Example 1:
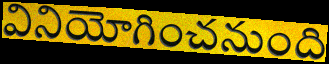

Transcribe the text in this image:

వినియోగించనుంది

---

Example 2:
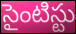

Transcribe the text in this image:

సైంటిస్టు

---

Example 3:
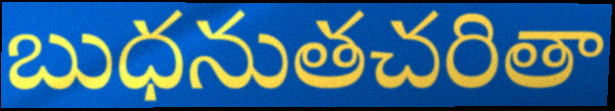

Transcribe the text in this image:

బుధనుతచరితా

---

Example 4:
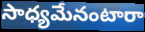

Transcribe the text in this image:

సాధ్యమేనంటారా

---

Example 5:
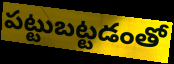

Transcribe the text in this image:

పట్టుబట్టడంతో